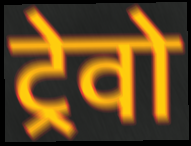
ट्रेवो